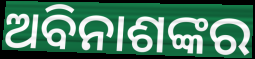
ଅବିନାଶଙ୍କର